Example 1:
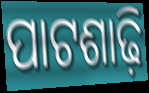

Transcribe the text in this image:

ପାଟଶାଢ଼ି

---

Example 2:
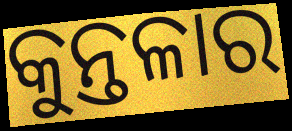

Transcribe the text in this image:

କୁନ୍ତଳାର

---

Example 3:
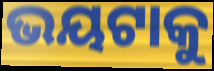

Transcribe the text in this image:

ଭୟଟାକୁ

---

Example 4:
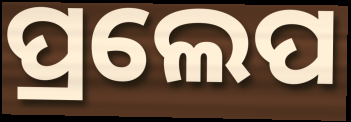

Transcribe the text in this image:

ପ୍ରଲେପ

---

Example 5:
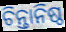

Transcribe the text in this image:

ଚିନ୍ତାନିଷ୍ଠ